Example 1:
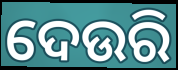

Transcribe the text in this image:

ଦେଉରି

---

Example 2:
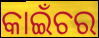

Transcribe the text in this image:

କାଇଁଚର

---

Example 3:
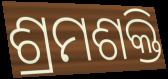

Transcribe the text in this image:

ଶ୍ରମଶକ୍ତି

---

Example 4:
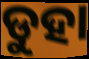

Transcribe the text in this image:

ଡୁହା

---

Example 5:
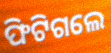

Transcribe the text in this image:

ଫିଟିଗଲେ